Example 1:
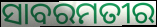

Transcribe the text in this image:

ସାବରମତୀର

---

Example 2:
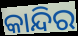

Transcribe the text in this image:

କାନ୍ଦିର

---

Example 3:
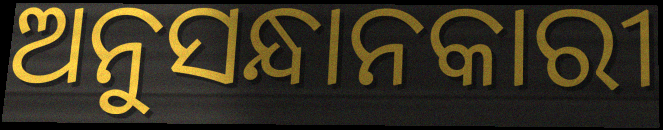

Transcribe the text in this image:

ଅନୁସନ୍ଧାନକାରୀ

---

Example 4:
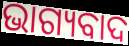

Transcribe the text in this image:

ଭାଗ୍ୟବାଦ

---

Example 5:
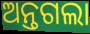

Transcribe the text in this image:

ଅନ୍ତଗଲା